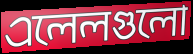
এলেলগুলো